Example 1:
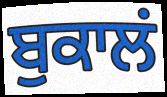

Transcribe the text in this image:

ਬੁਕਾਲਂ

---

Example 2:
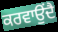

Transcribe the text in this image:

ਕਰਵਾਉਂਦੈ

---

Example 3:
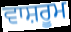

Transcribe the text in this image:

ਵਾਸ਼ਰੂਮ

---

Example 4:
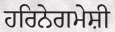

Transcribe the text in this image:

ਹਰਿਨੇਗਮੇਸ਼ੀ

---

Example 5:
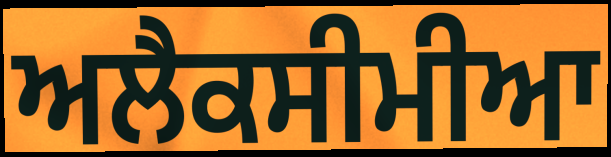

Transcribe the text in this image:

ਅਲੈਕਸੀਮੀਆ